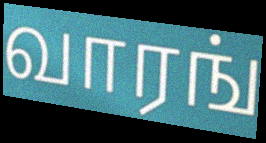
வாரங்